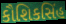
કૌશિકસિંહ